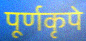
पूर्णकृपे